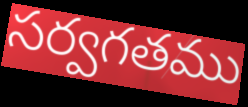
సర్వగతము